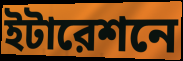
ইটারেশনে